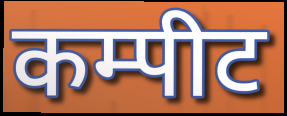
कम्पीट